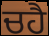
ਚਹੈ